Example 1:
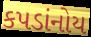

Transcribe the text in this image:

કપડાંનોય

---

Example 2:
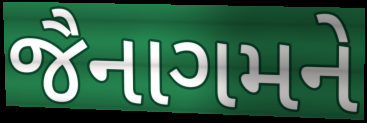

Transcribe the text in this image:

જૈનાગમને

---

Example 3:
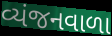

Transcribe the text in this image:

વ્યંજનવાળા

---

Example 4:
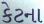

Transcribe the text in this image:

કેટના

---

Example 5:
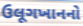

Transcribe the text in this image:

ઉલૂગખાનનો